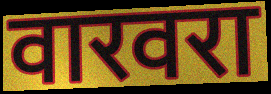
वारवरा